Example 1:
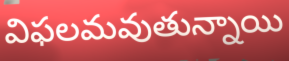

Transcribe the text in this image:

విఫలమవుతున్నాయి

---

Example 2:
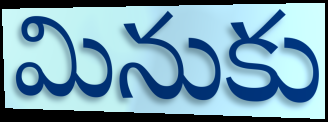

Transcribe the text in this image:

మినుకు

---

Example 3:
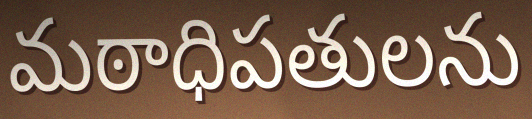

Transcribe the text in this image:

మఠాధిపతులను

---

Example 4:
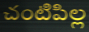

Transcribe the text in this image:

చంటిపిల్ల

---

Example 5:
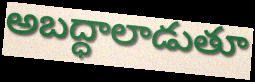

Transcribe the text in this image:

అబద్ధాలాడుతూ